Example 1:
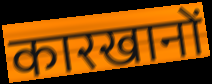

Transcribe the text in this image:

कारखानों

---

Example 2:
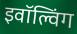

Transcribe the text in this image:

इवॉल्विंग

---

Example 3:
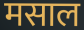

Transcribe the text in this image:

मसाल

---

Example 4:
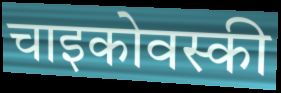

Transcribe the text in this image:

चाइकोवस्की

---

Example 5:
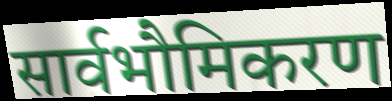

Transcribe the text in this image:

सार्वभौमिकरण